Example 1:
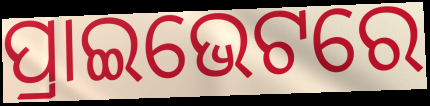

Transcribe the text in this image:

ପ୍ରାଇଭେଟରେ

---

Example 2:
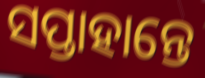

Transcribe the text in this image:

ସପ୍ତାହାନ୍ତେ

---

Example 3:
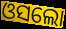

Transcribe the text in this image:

ଓସଲୋ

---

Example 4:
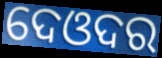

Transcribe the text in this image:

ଦେଓଦର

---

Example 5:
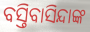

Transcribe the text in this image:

ବସ୍ତିବାସିନ୍ଦାଙ୍କ